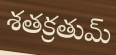
శతక్రతుమ్